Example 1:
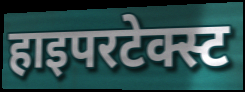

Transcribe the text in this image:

हाइपरटेक्स्ट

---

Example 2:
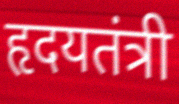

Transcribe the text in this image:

हृदयतंत्री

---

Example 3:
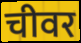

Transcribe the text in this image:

चीवर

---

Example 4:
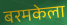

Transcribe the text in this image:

बरमकेला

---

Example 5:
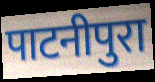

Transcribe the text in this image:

पाटनीपुरा